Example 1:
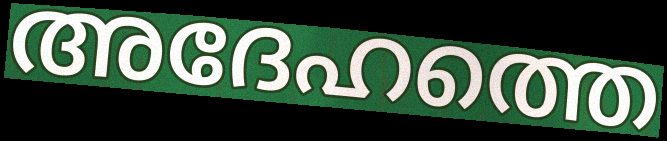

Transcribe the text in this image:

അദേഹത്തെ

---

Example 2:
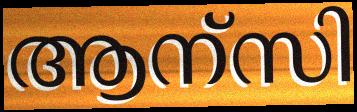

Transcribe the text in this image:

ആന്സി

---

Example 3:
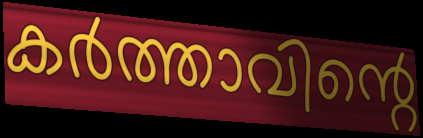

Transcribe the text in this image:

കർത്താവിന്റെ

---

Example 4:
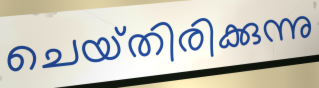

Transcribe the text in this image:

ചെയ്‌തിരിക്കുന്നു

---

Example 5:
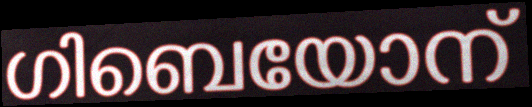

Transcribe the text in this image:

ഗിബെയോന്